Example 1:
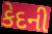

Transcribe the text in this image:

કેદની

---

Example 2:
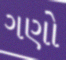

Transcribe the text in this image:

ગણો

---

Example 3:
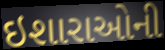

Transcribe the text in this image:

ઇશારાઓની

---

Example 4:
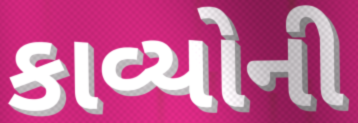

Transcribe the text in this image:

કાવ્યોની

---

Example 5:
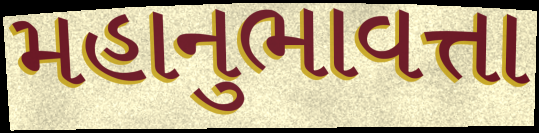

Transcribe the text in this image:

મહાનુભાવત્તા